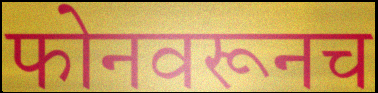
फोनवरूनच